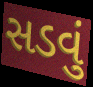
સડવું